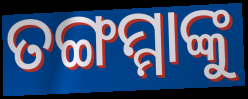
ତଙ୍ଗମ୍ମାଙ୍କୁ